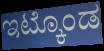
ಇಟ್ಕೊಂಡ